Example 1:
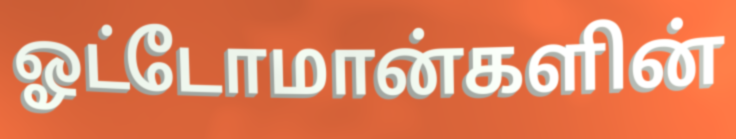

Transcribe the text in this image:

ஓட்டோமான்களின்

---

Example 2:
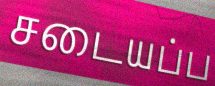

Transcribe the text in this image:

சடையப்ப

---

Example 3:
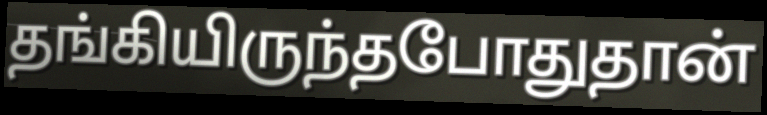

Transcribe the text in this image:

தங்கியிருந்தபோதுதான்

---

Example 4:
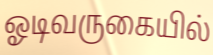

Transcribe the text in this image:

ஓடிவருகையில்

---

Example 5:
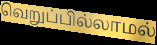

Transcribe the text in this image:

வெறுப்பில்லாமல்